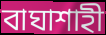
বাঘাশাহী